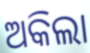
ଅକିଲା